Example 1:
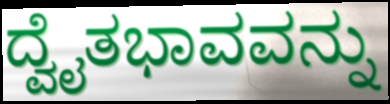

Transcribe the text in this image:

ದ್ವೈತಭಾವವನ್ನು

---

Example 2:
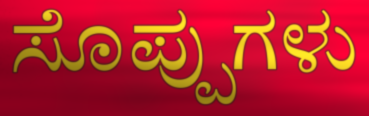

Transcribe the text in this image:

ಸೊಪ್ಪುಗಳು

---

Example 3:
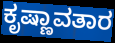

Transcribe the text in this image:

ಕೃಷ್ಣಾವತಾರ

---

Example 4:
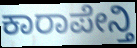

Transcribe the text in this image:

ಕಾರಾಪೇನ್ತಿ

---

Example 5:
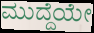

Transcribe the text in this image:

ಮುದ್ದೆಯೇ